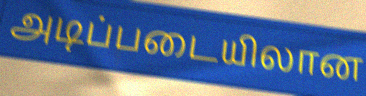
அடிப்படையிலான